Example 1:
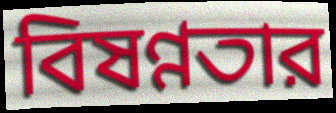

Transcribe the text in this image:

বিষণ্নতার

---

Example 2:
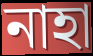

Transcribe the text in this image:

নাহা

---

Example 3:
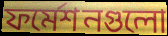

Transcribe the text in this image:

ফর্মেশনগুলো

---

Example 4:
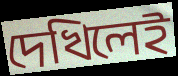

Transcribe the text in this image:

দেখিলেই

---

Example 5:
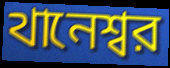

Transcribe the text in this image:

থানেশ্বর